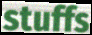
stuffs